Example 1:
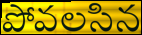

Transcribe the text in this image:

పోవలసిన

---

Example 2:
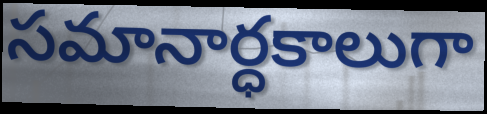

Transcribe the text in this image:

సమానార్ధకాలుగా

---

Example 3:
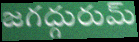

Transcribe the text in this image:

జగద్గురుమ్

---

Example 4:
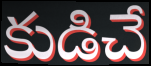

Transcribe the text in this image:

కుడిచే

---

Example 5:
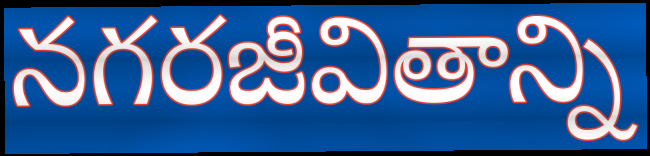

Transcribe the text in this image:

నగరజీవితాన్ని